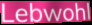
Lebwohl